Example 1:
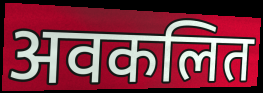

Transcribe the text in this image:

अवकलित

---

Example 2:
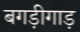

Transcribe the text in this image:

बगड़ीगाड़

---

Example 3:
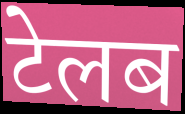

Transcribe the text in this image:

टेलब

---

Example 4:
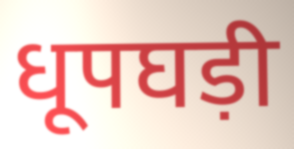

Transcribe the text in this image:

धूपघड़ी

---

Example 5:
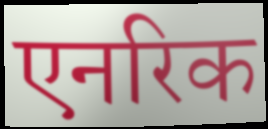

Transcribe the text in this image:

एनरिक